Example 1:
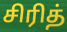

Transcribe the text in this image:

சிரித்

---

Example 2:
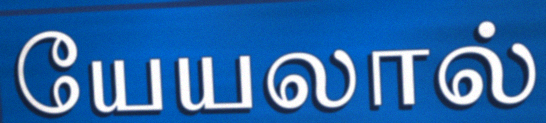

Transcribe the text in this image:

யேயலால்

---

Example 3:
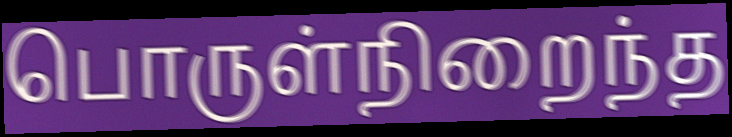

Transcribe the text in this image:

பொருள்நிறைந்த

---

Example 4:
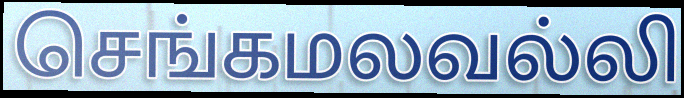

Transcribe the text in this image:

செங்கமலவல்லி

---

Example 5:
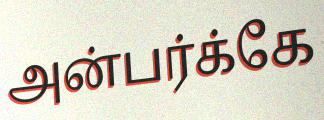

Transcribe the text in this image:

அன்பர்க்கே